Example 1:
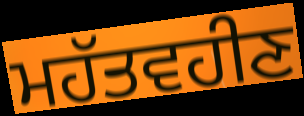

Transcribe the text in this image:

ਮਹੱਤਵਹੀਣ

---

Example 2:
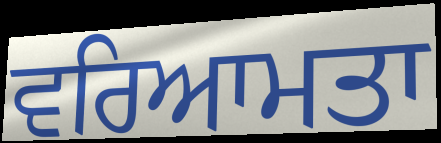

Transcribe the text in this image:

ਵਰਿਆਮਤਾ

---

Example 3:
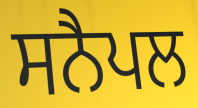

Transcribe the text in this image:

ਸਨੈਪਲ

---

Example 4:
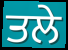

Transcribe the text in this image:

ਤਲੇ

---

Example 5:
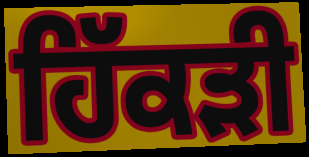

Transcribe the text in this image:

ਹਿੱਕੜੀ